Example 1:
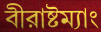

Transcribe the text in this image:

বীরাষ্টম্যাং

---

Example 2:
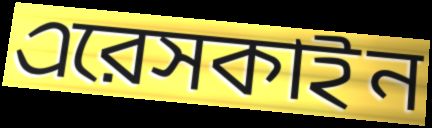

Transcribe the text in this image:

এরেসকাইন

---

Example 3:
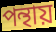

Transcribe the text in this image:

পন্থায়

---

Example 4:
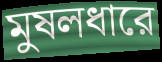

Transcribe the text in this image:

মুষলধারে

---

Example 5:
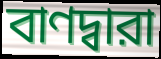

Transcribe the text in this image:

বাণদ্বারা